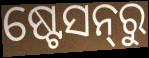
ଷ୍ଟେସନ୍‌ରୁ